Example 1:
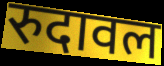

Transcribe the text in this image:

रुदावल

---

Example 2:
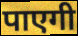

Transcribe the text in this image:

पाएगी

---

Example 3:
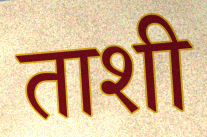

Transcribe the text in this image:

ताशी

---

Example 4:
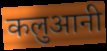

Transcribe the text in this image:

कलुआनी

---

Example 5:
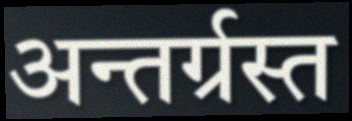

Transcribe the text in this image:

अन्तर्ग्रस्त